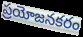
ప్రయోజనకరం